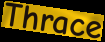
Thrace